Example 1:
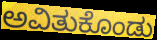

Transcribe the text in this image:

ಅವಿತುಕೊಂಡು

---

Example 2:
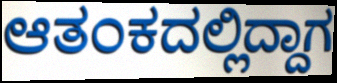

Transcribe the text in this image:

ಆತಂಕದಲ್ಲಿದ್ದಾಗ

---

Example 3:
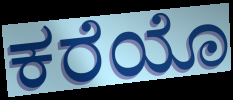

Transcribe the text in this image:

ಕರೆಯೊ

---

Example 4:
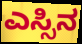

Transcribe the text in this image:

ಎಸ್ಸಿನ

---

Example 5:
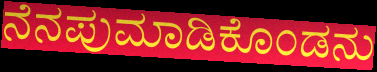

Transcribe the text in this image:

ನೆನಪುಮಾಡಿಕೊಂಡನು